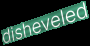
disheveled